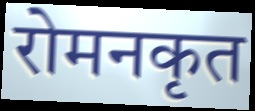
रोमनकृत